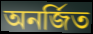
অনর্জিত